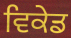
ਵਿਕੇਡ